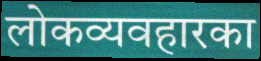
लोकव्यवहारका